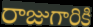
రాజుగారికి